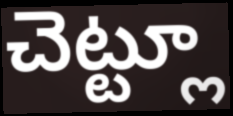
చెట్ట్లూ